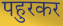
पहुरकर